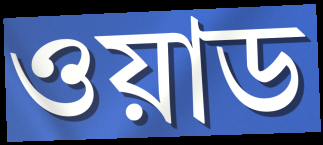
ওয়াড